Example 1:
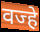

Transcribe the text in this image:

वज्हे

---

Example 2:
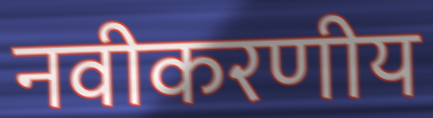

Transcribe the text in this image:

नवीकरणीय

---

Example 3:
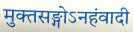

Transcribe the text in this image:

मुक्तसङ्गोऽनहंवादी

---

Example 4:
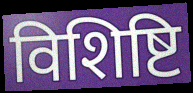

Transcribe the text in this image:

विशिष्टि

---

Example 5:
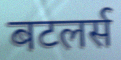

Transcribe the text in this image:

बटलर्स